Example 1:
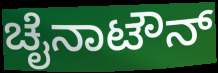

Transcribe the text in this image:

ಚೈನಾಟೌನ್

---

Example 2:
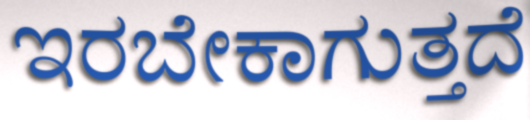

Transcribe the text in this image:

ಇರಬೇಕಾಗುತ್ತದೆ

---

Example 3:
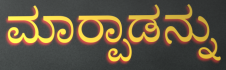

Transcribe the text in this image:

ಮಾರ‍್ಪಾಡನ್ನು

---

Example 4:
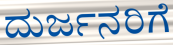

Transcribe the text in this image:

ದುರ್ಜನರಿಗೆ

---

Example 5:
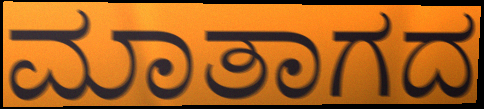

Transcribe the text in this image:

ಮಾತಾಗದ